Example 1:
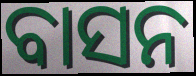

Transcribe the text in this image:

ବାସନ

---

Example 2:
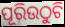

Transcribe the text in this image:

ପୂରିଉଠୁଚି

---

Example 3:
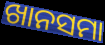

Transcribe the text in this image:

ଖାନସମା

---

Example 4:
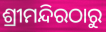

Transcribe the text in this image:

ଶ୍ରୀମନ୍ଦିରଠାରୁ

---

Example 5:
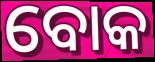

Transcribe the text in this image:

ବୋକ